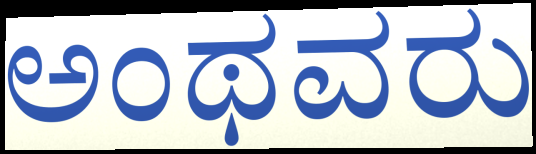
ಅಂಥವರು